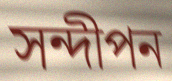
সন্দীপন